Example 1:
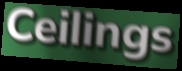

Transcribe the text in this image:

Ceilings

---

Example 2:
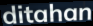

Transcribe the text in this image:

ditahan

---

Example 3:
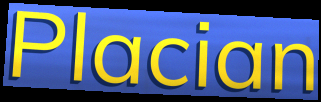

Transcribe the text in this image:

Placian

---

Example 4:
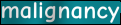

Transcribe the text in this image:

malignancy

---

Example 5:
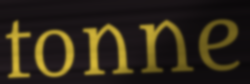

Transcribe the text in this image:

tonne